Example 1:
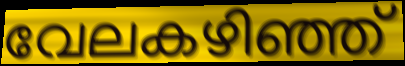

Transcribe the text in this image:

വേലകഴിഞ്ഞ്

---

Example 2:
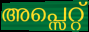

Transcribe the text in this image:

അപ്സെറ്റ്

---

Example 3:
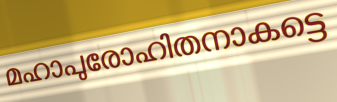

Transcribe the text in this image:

മഹാപുരോഹിതനാകട്ടെ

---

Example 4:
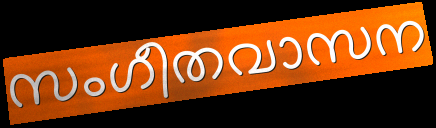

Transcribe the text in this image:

സംഗീതവാസന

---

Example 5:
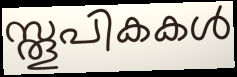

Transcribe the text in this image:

സ്തൂപികകൾ